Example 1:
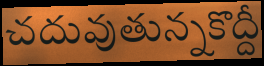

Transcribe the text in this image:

చదువుతున్నకొద్దీ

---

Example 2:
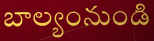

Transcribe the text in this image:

బాల్యంనుండి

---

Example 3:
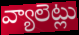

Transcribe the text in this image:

వ్యాలెట్లు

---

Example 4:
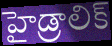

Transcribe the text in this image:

హైడ్రాలిక్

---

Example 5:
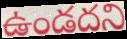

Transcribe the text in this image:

ఉండదని